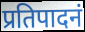
प्रतिपादनं